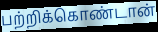
பற்றிக்கொண்டான்